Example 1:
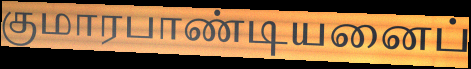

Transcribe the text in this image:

குமாரபாண்டியனைப்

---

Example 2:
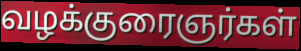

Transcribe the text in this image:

வழக்குரைஞர்கள்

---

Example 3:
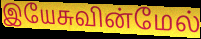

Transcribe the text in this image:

இயேசுவின்மேல்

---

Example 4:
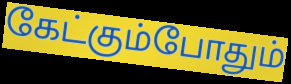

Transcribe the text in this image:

கேட்கும்போதும்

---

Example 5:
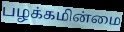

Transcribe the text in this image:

பழக்கமின்மை